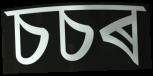
চচৰ